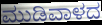
ಮುಡಿವಾಳದ